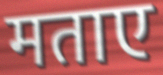
मताए